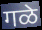
गळे